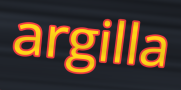
argilla